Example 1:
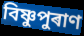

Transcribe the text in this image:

বিষ্ণুপুৰাণ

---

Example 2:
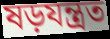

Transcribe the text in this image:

ষড়যন্ত্ৰত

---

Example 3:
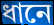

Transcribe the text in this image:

ধানে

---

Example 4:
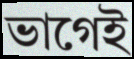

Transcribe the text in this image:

ভাগেই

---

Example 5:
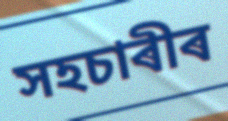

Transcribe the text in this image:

সহচাৰীৰ